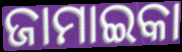
ଜାମାଇକା